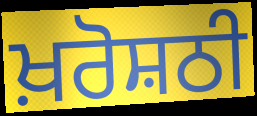
ਖ਼ਰੋਸ਼ਠੀ